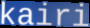
kairi